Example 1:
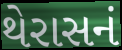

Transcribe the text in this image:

થેરાસનં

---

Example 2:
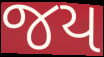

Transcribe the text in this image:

જય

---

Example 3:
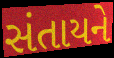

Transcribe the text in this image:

સંતાયને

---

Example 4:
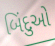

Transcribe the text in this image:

બિંદુઓ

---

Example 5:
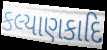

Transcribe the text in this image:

કલ્યાણકાદિ